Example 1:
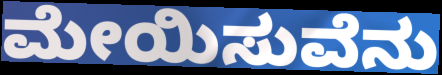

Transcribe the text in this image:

ಮೇಯಿಸುವೆನು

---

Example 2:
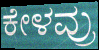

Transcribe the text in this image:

ಕೇಳವ್ರು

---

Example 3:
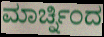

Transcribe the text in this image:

ಮಾರ್ಚ್ನಿಂದ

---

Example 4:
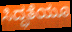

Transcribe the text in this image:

ಸಿದ್ಧತೆಯೂ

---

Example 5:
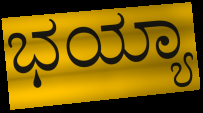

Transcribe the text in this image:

ಭಯ್ಯಾ